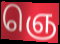
ஞெ